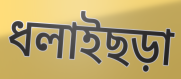
ধলাইছড়া